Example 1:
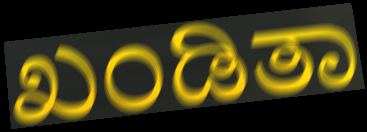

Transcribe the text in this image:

ಖಂಡಿತಾ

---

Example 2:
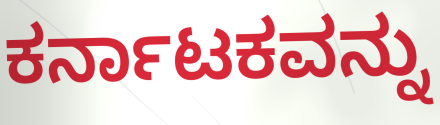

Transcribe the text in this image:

ಕರ್ನಾಟಕವನ್ನು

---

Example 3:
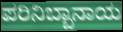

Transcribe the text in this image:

ಪರಿನಿಬ್ಬಾನಾಯ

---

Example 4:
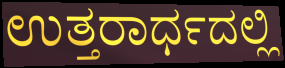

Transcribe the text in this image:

ಉತ್ತರಾರ್ಧದಲ್ಲಿ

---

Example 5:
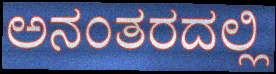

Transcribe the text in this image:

ಅನಂತರದಲ್ಲಿ